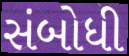
સંબોધી